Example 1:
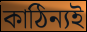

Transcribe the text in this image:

কাঠিন্যই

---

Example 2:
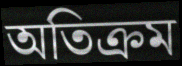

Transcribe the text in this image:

অতিক্ৰম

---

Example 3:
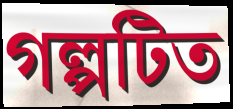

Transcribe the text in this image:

গল্পটিত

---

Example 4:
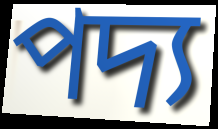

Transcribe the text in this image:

পদ্য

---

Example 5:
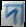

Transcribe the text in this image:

দা